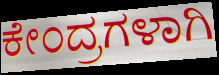
ಕೇಂದ್ರಗಳಾಗಿ